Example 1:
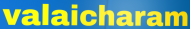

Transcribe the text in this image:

valaicharam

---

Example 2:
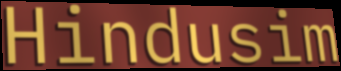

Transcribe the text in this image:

Hindusim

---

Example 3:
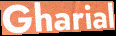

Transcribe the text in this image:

Gharial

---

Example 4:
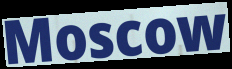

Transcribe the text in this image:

Moscow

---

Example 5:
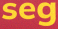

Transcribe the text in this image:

seg